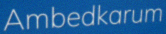
Ambedkarum